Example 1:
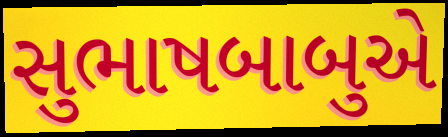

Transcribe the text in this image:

સુભાષબાબુએ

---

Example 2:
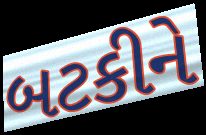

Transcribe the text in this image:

બટકીને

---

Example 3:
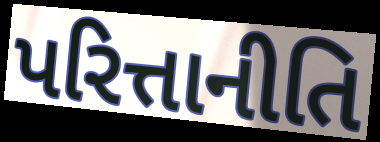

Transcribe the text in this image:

પરિત્તાનીતિ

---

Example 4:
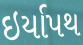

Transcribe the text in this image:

ઇર્યાપથ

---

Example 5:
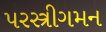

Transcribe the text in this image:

પરસ્ત્રીગમન